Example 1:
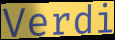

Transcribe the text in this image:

Verdi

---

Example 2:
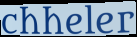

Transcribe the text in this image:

chheler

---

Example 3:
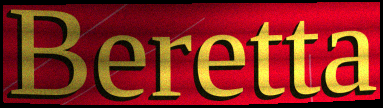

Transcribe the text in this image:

Beretta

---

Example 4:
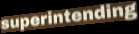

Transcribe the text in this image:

superintending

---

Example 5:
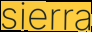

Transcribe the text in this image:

sierra